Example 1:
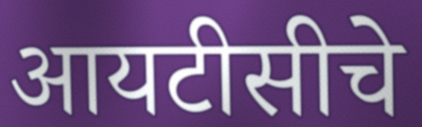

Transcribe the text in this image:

आयटीसीचे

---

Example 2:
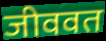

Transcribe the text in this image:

जीववत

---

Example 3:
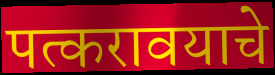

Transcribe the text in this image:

पत्करावयाचे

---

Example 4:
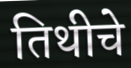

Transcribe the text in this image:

तिथीचे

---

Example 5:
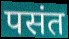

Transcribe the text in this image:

पसंत